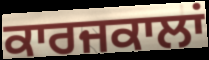
ਕਾਰਜਕਾਲਾਂ